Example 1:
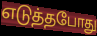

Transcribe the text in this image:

எடுத்தபோது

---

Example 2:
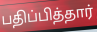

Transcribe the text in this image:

பதிப்பித்தார்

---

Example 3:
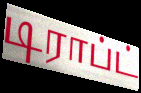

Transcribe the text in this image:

டிராப்ட்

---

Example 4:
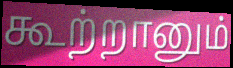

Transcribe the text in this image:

கூற்றானும்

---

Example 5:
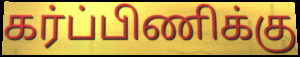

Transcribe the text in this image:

கர்ப்பிணிக்கு